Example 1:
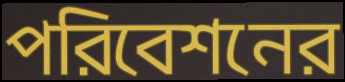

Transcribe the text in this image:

পরিবেশনের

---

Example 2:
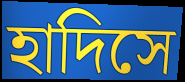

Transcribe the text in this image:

হাদিসে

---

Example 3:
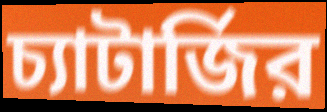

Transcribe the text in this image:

চ্যাটার্জির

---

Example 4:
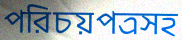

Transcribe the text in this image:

পরিচয়পত্রসহ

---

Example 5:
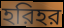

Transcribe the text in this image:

হরিহর